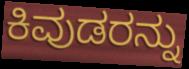
ಕಿವುಡರನ್ನು